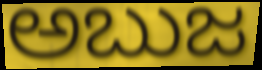
ಅಬುಜ